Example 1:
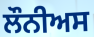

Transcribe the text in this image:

ਲੌਨੀਅਸ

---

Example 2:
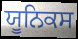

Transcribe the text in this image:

ਯੂਨਿਕਸ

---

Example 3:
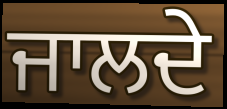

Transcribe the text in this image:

ਜਾਲਦੇ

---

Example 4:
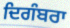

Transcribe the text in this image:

ਦਿਗੰਬਰਾ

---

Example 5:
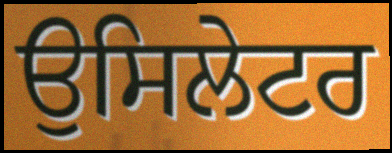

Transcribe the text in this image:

ਉਸਿਲੇਟਰ